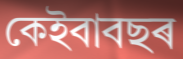
কেইবাবছৰ